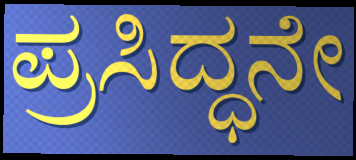
ಪ್ರಸಿದ್ಧನೇ